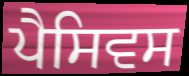
ਪੈਸਿਵਸ